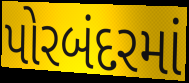
પોરબંદરમાં